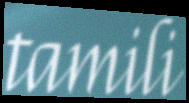
tamili